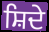
ਸ਼ਿਦੇ